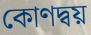
কোণদ্বয়